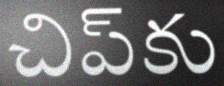
చిప్‌కు